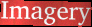
Imagery